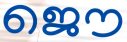
ജൌ